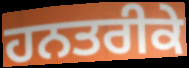
ਹਨਤਰੀਕੇ